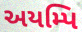
અયમ્પિ